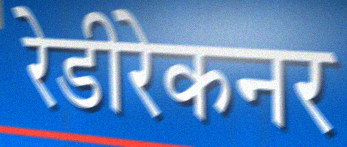
रेडीरेकनर